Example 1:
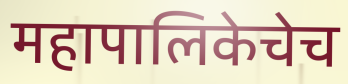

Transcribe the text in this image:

महापालिकेचेच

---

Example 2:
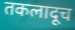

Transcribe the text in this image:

तकलादूच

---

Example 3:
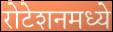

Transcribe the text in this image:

रोटेशनमध्ये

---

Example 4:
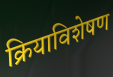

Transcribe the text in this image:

क्रियाविशेषण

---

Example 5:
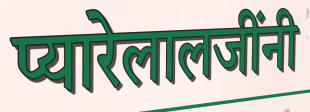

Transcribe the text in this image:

प्यारेलालजींनी